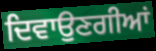
ਦਿਵਾਉਣਗੀਆਂ